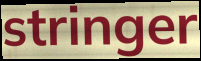
stringer